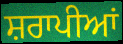
ਸ਼ਰਾਪੀਆਂ